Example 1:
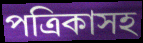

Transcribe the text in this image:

পত্রিকাসহ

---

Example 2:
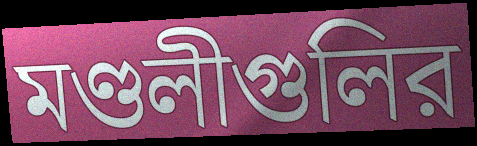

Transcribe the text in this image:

মণ্ডলীগুলির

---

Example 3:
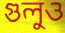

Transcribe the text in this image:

গুলুও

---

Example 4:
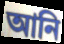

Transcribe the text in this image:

আনি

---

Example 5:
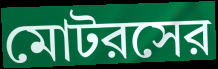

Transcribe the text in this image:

মোটরসের